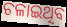
ଚଳାଇଥିବ